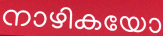
നാഴികയോ